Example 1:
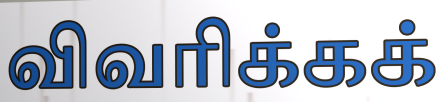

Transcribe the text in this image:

விவரிக்கக்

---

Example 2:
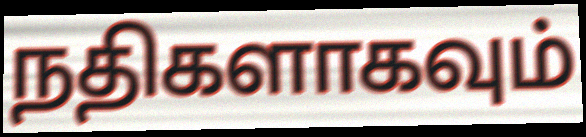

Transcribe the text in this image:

நதிகளாகவும்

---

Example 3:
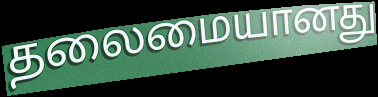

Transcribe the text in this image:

தலைமையானது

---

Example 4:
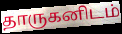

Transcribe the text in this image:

தாருகனிடம்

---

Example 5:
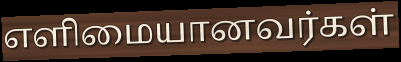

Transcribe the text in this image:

எளிமையானவர்கள்